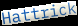
Hattrick